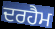
ਦਰਹੈਮ